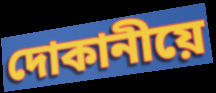
দোকানীয়ে